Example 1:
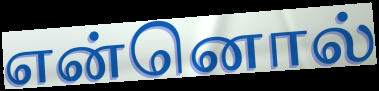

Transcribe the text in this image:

என்னொல்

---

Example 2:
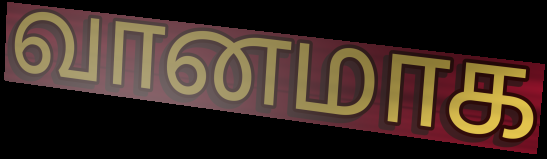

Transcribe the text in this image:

வானமாக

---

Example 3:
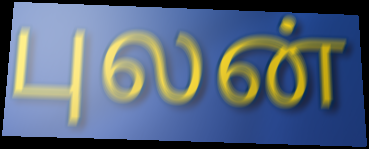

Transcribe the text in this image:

புலன்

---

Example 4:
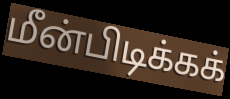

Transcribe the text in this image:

மீன்பிடிக்கக்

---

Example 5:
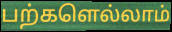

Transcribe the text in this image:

பற்களெல்லாம்